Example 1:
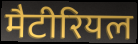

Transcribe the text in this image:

मैटीरियल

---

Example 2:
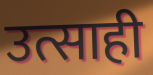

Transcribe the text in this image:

उत्साही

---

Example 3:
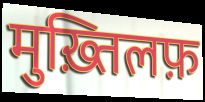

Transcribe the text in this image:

मुख़्तिलफ़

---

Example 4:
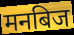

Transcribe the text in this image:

मनबिज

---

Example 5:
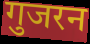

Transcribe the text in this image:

गुजरन